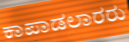
ಕಾಪಾಡಲಾರರು